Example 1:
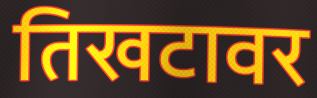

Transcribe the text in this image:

तिखटावर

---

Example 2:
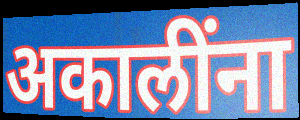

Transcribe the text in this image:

अकालींना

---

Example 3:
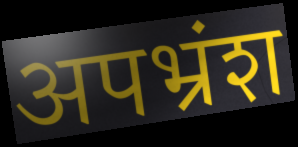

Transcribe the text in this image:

अपभ्रंश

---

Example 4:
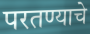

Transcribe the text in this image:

परतण्याचे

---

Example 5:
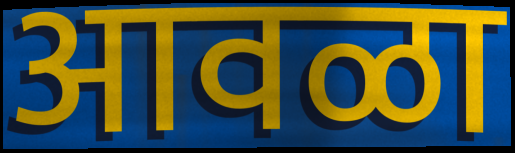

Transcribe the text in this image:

आवळा